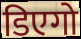
डिएगो